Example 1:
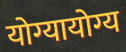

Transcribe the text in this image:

योग्यायोग्य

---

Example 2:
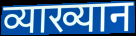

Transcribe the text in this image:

व्याख्यान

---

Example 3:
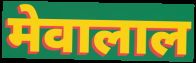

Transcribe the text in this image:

मेवालाल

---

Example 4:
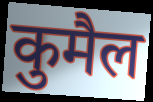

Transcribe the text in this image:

कुमैल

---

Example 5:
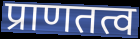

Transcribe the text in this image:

प्राणतत्व